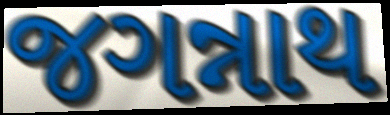
જગન્નાથ